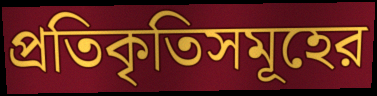
প্রতিকৃতিসমূহের